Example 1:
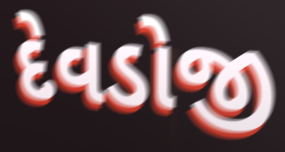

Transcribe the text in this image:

દેવડોજી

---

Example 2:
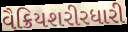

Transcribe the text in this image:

વૈક્રિયશરીરધારી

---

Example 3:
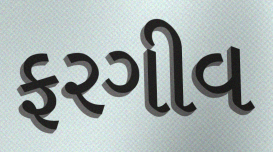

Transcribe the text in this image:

ફરગીવ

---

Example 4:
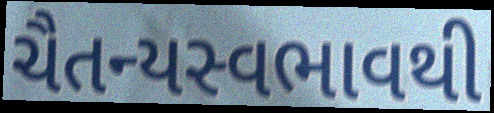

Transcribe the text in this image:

ચૈતન્યસ્વભાવથી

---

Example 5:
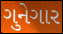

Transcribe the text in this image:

ગુનેગાર